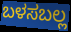
ಬಳಸಬಲ್ಲ